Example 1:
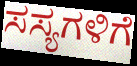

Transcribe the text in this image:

ಸಸ್ಯಗಳಿಗೆ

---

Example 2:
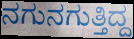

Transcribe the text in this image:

ನಗುನಗುತ್ತಿದ್ದ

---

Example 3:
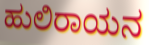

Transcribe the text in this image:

ಹುಲಿರಾಯನ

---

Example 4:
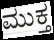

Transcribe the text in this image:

ಮುಕ್ತ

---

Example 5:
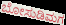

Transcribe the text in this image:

ಬೋಸುಡಿಮಗ